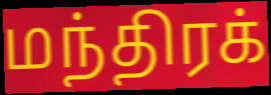
மந்திரக்